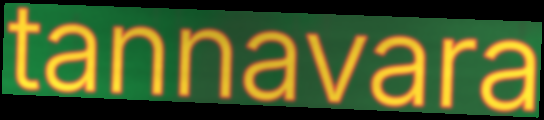
tannavara